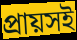
প্রায়সই